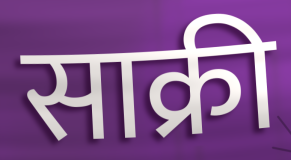
साक्री